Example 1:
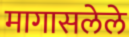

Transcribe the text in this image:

मागासलेले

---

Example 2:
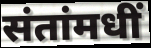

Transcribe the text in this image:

संतांमधीं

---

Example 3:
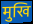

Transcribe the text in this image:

मुखि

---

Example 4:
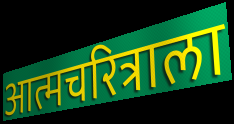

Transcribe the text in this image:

आत्मचरित्राला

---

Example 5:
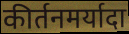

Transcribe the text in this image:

कीर्तनमर्यादा